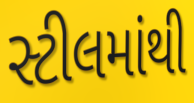
સ્ટીલમાંથી